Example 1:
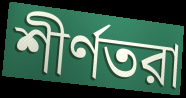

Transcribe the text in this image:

শীর্ণতরা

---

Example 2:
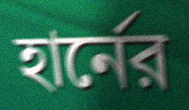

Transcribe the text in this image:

হার্নের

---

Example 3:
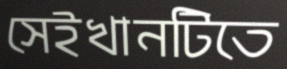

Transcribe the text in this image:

সেইখানটিতে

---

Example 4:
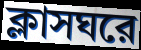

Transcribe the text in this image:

ক্লাসঘরে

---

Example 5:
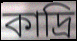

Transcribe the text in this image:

কাদ্রি